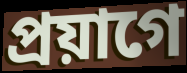
প্রয়াগে